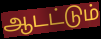
ஆடட்டும்